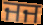
ਜਜ